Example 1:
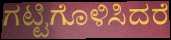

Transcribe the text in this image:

ಗಟ್ಟಿಗೊಳಿಸಿದರೆ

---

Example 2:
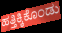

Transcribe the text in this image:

ಹತ್ತಿಕ್ಕಿಕೊಂಡು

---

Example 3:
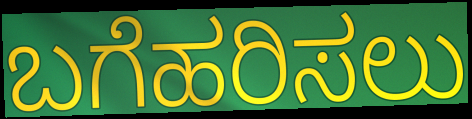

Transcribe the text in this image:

ಬಗೆಹರಿಸಲು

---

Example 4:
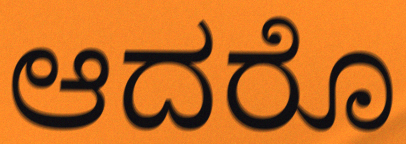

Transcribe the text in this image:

ಆದರೊ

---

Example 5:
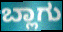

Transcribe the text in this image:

ಬ್ಲಾಗು